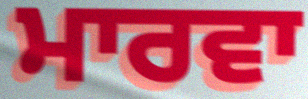
ਮਾਰਵਾ